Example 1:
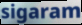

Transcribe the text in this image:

sigaram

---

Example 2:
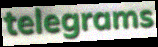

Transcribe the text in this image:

telegrams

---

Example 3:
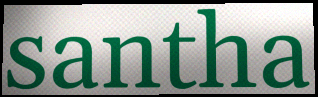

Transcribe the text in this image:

santha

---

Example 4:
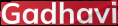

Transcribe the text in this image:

Gadhavi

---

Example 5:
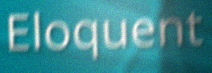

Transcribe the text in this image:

Eloquent